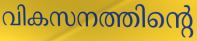
വികസനത്തിന്റെ